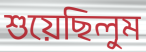
শুয়েছিলুম